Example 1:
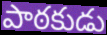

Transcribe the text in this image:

పాఠకుడు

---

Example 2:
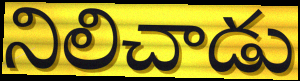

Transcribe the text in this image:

నిలిచాడు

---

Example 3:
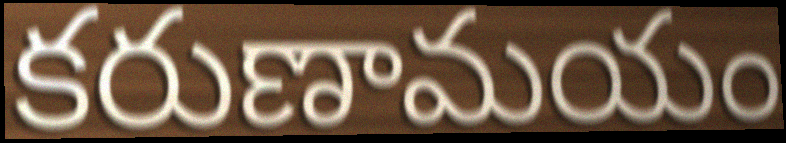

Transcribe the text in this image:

కరుణామయం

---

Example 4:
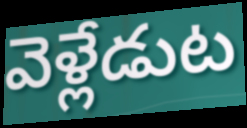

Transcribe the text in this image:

వెళ్లేడుట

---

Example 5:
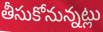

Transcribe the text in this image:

తీసుకోనున్నట్లు